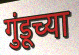
गुंडूच्या